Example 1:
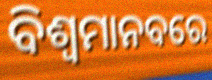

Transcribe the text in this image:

ବିଶ୍ୱମାନବରେ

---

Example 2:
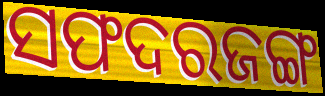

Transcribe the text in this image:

ସଫଦରଜଙ୍ଗ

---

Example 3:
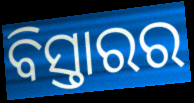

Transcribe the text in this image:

ବିସ୍ତାରର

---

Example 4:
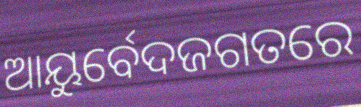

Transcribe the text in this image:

ଆୟୁର୍ବେଦଜଗତରେ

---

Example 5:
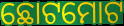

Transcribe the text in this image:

ଛୋଟମୋଟ